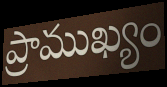
ప్రాముఖ్యం